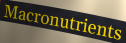
Macronutrients